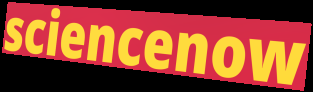
sciencenow